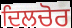
ਦਿਲਚੋਰ